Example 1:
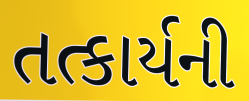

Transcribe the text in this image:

તત્કાર્યની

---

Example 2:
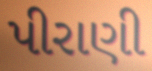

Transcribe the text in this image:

પીરાણી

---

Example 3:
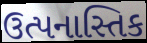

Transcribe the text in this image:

ઉત્પનાસ્તિક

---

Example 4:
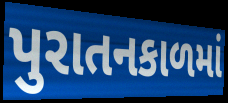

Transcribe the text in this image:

પુરાતનકાળમાં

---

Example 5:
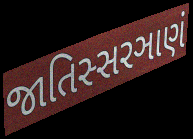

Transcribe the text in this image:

જાતિસ્સરઞાણં